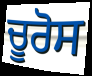
ਚੂਰੋਸ